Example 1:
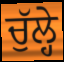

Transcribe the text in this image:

ਚੁੱਲ੍ਹੇ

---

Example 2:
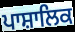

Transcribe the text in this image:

ਪਾਸ਼ਾਲਿਕ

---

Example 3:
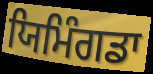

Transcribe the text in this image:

ਯਿਮਿੰਗਡਾ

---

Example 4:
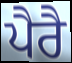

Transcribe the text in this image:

ਪੈਰੈ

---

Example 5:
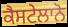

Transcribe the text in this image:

ਕੈਸਟੇਲਾਨੋ